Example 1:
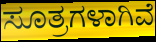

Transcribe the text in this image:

ಸೂತ್ರಗಳಾಗಿವೆ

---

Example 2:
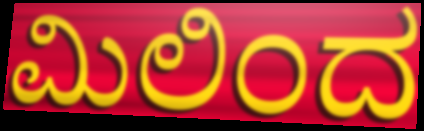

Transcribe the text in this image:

ಮಿಲಿಂದ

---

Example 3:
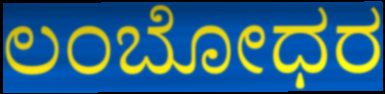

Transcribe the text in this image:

ಲಂಬೋಧರ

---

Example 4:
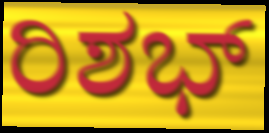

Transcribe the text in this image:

ರಿಶಭ್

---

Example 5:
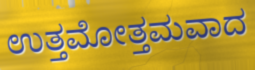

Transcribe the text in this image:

ಉತ್ತಮೋತ್ತಮವಾದ